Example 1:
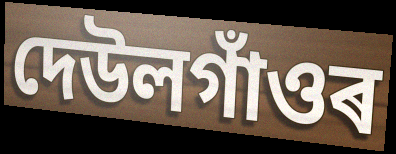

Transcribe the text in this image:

দেউলগাঁওৰ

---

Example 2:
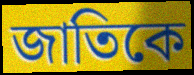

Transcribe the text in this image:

জাতিকে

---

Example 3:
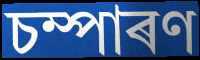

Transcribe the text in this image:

চম্পাৰণ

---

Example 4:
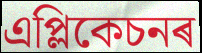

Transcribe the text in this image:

এপ্লিকেচনৰ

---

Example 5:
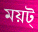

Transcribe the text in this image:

ময়ট্